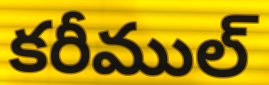
కరీముల్